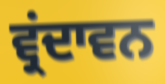
ਵ੍ਰਂਦਾਵਨ